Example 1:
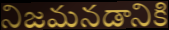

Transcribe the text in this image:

నిజమనడానికి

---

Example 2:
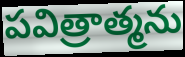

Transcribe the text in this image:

పవిత్రాత్మను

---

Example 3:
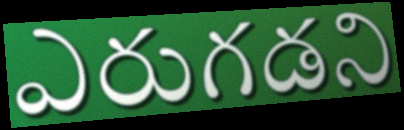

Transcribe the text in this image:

ఎరుగడని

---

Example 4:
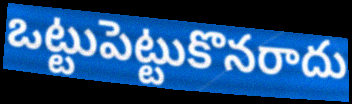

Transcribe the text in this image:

ఒట్టుపెట్టుకొనరాదు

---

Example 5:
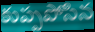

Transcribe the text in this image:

కుప్పపోసిన